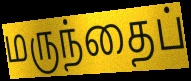
மருந்தைப்